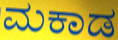
ಮಕಾಡ